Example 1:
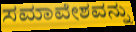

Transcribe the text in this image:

ಸಮಾವೇಶವನ್ನು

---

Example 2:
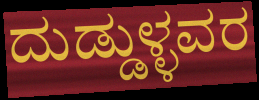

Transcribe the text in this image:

ದುಡ್ಡುಳ್ಳವರ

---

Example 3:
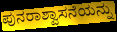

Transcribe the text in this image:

ಪುನರಾಶ್ವಾಸನೆಯನ್ನು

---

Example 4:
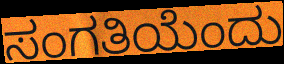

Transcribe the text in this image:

ಸಂಗತಿಯೆಂದು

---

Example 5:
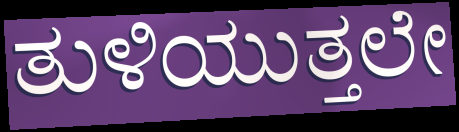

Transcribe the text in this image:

ತುಳಿಯುತ್ತಲೇ